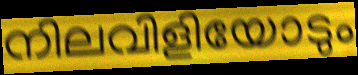
നിലവിളിയോടും